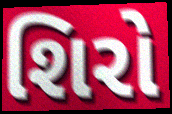
શિરો